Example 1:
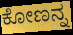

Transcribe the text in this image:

ಕೋಣನ್ನ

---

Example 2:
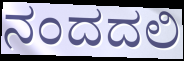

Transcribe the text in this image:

ನಂದದಲಿ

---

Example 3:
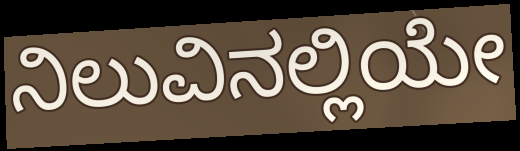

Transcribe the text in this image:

ನಿಲುವಿನಲ್ಲಿಯೇ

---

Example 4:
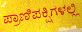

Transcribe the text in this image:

ಪ್ರಾಣಿಪಕ್ಷಿಗಳಲ್ಲಿ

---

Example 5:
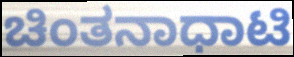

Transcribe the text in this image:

ಚಿಂತನಾಧಾಟಿ